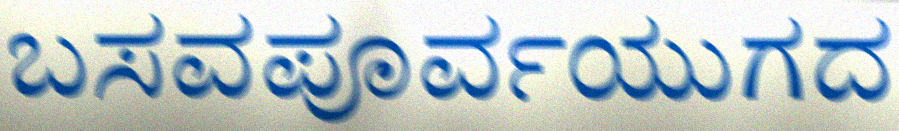
ಬಸವಪೂರ್ವಯುಗದ